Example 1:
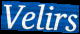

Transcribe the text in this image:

Velirs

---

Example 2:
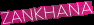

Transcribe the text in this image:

ZANKHANA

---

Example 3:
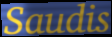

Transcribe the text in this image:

Saudis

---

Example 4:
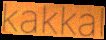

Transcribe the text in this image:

kakkal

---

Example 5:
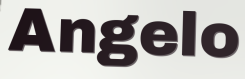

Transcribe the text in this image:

Angelo